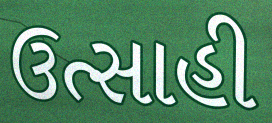
ઉત્સાહી